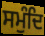
ਸਮੁੰਦਿ